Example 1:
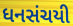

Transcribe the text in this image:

ધનસંચયી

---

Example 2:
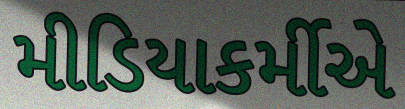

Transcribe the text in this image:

મીડિયાકર્મીએ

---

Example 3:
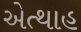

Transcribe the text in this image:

એત્થાહ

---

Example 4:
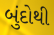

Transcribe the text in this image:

બુંદોથી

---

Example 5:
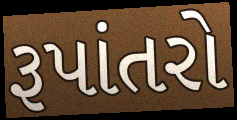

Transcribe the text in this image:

રૂપાંતરો